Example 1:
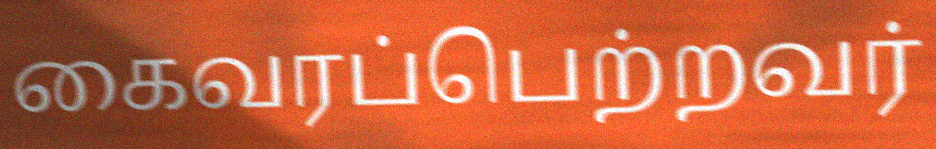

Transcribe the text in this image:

கைவரப்பெற்றவர்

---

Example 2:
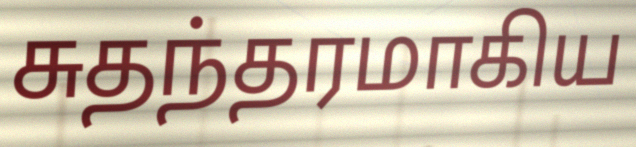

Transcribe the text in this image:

சுதந்தரமாகிய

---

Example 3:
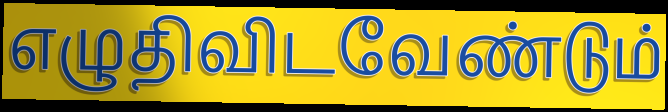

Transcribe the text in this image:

எழுதிவிடவேண்டும்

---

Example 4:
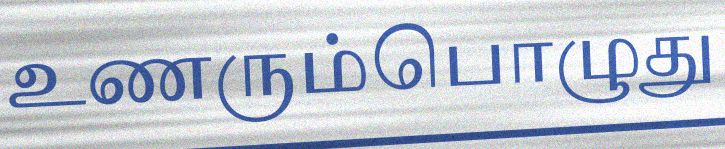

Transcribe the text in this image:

உணரும்பொழுது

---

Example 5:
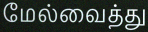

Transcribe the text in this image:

மேல்வைத்து